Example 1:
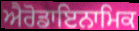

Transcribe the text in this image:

ਐਰੋਡਾਇਨਾਮਿਕ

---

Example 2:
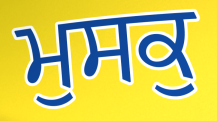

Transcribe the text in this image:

ਮੁਸਕੁ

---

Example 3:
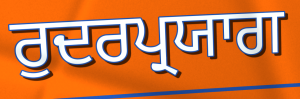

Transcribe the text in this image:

ਰੁਦਰਪ੍ਰਯਾਗ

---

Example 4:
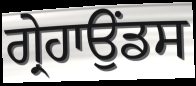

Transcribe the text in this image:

ਗ੍ਰੇਹਾਉਂਡਸ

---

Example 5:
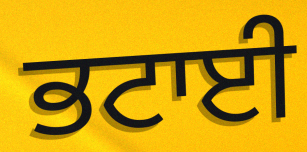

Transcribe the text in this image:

ਭਟਾਈ